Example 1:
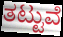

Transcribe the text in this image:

ತಟ್ಟುವೆ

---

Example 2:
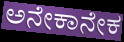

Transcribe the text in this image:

ಅನೇಕಾನೇಕ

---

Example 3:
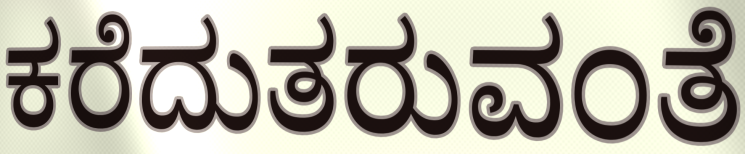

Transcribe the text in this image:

ಕರೆದುತರುವಂತೆ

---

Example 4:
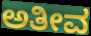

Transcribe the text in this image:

ಅತೀವ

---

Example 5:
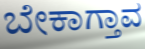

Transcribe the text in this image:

ಬೇಕಾಗ್ತಾವ